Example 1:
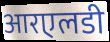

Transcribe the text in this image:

आरएलडी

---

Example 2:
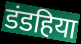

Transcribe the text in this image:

डंडहिया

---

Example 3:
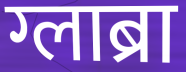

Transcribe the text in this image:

ग्लाब्रा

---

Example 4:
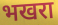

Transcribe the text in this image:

भखरा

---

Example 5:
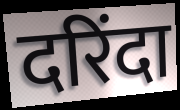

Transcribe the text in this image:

दरिंदा